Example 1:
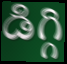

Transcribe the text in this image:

డిగ్గి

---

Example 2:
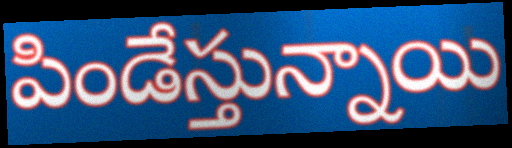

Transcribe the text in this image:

పిండేస్తున్నాయి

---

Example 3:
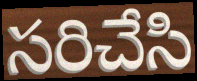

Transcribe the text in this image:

సరిచేసి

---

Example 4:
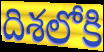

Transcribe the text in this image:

దిశలోకి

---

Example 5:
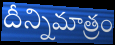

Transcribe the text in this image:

దీన్నిమాత్రం